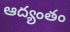
ఆద్యంతం